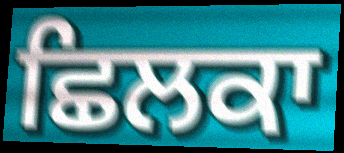
ਛਿਲਕਾ